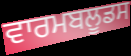
ਵਾਰਮਬਲੂਡਸ